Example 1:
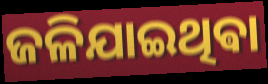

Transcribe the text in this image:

ଜଳିଯାଇଥିଵା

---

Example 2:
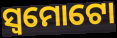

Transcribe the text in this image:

ସ୍ୱମୋଟୋ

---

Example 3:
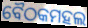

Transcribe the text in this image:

ବୈଠକମହଲ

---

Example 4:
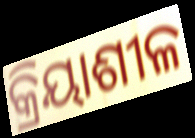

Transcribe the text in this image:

କ୍ରିୟାଶୀଳ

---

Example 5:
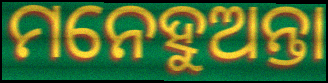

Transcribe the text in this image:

ମନେହୁଅନ୍ତା